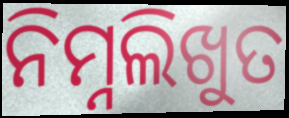
ନିମ୍ନଲିଖୁତ